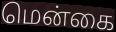
மென்கை